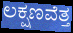
ಲಕ್ಷಣವೆತ್ತ